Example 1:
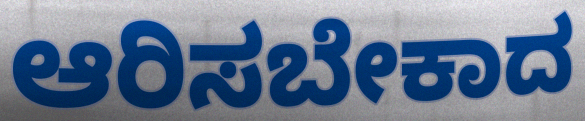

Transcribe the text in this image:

ಆರಿಸಬೇಕಾದ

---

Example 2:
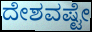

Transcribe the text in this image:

ದೇಶವಷ್ಟೇ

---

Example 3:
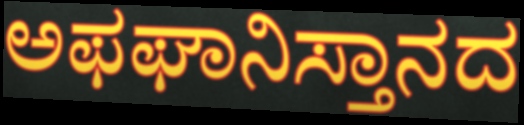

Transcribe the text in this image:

ಅಫಘಾನಿಸ್ತಾನದ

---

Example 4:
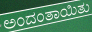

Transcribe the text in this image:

ಅಂದಂತಾಯಿತು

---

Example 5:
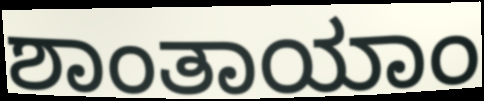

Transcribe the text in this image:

ಶಾಂತಾಯಾಂ